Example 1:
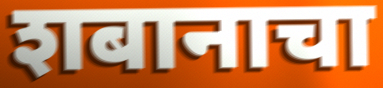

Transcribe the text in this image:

शबानाचा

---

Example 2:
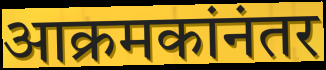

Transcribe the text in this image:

आक्रमकांनंतर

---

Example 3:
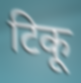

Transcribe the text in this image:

टिकू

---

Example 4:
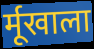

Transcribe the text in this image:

र्मूखाला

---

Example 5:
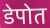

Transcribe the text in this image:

डेपोत